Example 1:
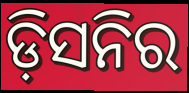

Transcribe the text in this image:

ଡ଼ିସନିର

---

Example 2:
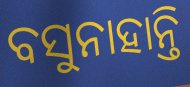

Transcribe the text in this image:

ବସୁନାହାନ୍ତି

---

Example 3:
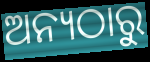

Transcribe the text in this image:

ଅନ୍ୟଠାରୁ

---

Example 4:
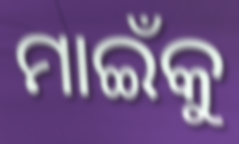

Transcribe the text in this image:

ମାଇଁକୁ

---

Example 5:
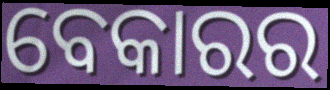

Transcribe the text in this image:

ବେକାରର